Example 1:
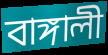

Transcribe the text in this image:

বাঙ্গালী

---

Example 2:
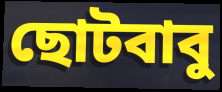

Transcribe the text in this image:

ছোটবাবু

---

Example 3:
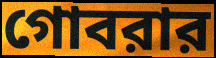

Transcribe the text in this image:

গোবরার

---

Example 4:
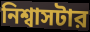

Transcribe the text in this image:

নিশ্বাসটার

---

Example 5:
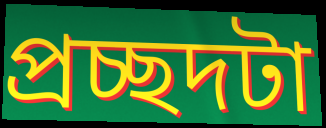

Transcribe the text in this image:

প্রচ্ছদটা